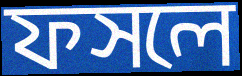
ফসলে